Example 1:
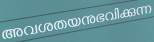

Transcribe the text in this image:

അവശതയനുഭവിക്കുന്ന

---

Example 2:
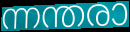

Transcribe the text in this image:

ന്നന്തരാ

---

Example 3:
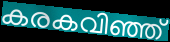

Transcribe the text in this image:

കരകവിഞ്ഞ്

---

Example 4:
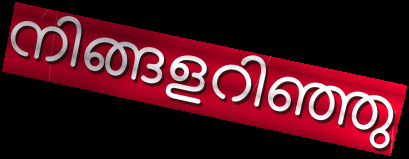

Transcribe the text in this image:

നിങ്ങളറിഞ്ഞു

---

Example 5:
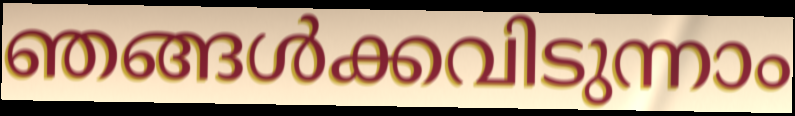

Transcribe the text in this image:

ഞങ്ങൾക്കവിടുന്നാം